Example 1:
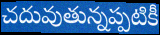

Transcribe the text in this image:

చదువుతున్నప్పటికీ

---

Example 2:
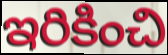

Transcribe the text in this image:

ఇరికించి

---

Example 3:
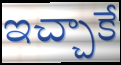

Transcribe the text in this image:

ఇచ్చాకే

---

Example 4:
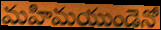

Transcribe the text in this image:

మహిమయుండెనో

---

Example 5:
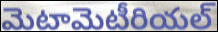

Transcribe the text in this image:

మెటామెటీరియల్